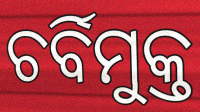
ଚର୍ବିମୁକ୍ତ